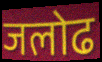
जलोढ